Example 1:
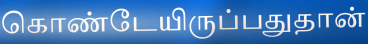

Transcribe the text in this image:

கொண்டேயிருப்பதுதான்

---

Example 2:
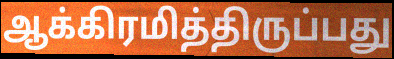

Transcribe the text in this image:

ஆக்கிரமித்திருப்பது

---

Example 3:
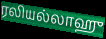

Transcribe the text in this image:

ரலியல்லாஹு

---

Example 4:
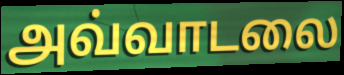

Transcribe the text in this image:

அவ்வாடலை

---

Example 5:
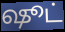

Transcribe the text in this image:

ஷூட்